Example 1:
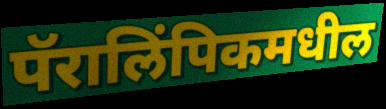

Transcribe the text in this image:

पॅरालिंपिकमधील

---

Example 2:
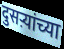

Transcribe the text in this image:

दुसऱ्‍यांच्या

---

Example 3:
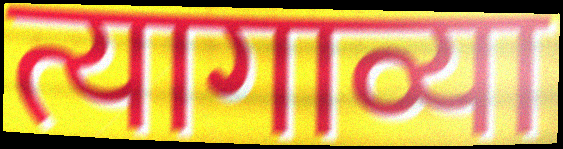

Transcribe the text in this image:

त्यागाव्या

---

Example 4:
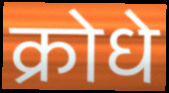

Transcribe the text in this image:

क्रोधे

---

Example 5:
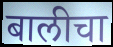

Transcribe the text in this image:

बालीचा